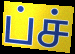
ப்ச்